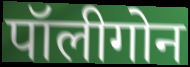
पॉलीगोन